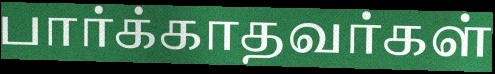
பார்க்காதவர்கள்